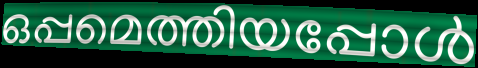
ഒപ്പമെത്തിയപ്പോൾ